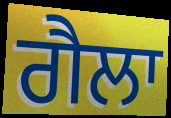
ਗੈਲਾ